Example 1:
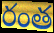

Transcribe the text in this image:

రంత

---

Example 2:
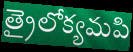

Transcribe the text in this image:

త్రైలోక్యమపి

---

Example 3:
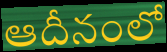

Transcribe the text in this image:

ఆదీనంలో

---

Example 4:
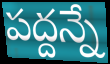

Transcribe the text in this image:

పద్దన్నే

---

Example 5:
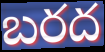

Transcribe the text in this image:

బరద